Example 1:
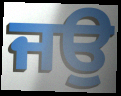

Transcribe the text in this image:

ਜਉ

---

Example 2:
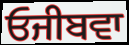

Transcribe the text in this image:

ਓਜੀਬਵਾ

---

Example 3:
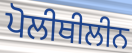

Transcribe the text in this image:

ਪੋਲੀਥੀਲੀਨ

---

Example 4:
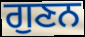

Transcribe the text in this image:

ਗੁਣਨ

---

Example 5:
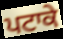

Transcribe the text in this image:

ਪਟਾਕੇ